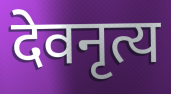
देवनृत्य